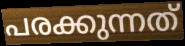
പരക്കുന്നത്